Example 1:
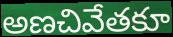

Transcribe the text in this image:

అణచివేతకూ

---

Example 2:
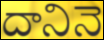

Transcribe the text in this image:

దానినె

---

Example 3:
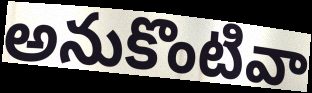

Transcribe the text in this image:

అనుకొంటివా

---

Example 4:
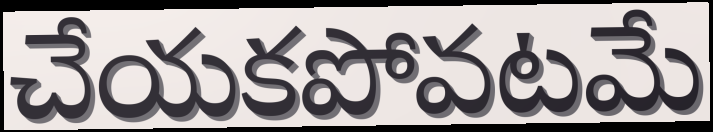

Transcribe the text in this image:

చేయకపోవటమే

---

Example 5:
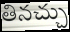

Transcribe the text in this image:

తినచ్చు